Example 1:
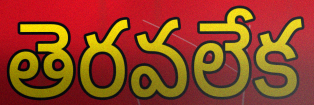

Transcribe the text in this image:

తెరవలేక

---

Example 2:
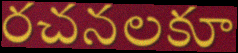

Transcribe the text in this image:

రచనలకూ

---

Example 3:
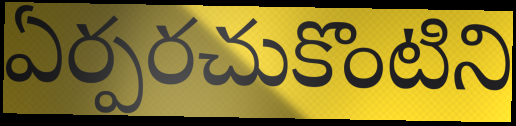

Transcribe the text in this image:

ఏర్పరచుకొంటిని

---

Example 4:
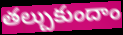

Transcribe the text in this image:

తల్చుకుందాం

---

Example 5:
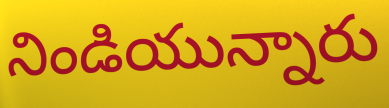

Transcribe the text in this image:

నిండియున్నారు